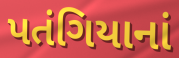
પતંગિયાનાં